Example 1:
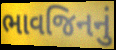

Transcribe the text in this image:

ભાવજિનનું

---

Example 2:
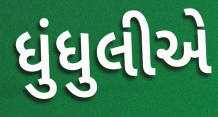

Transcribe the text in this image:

ધુંધુલીએ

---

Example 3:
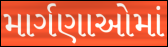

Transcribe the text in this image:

માર્ગણાઓમાં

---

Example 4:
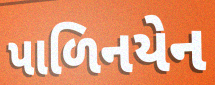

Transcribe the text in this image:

પાળિનયેન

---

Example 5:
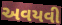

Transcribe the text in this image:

અવયવી